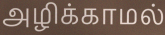
அழிக்காமல்